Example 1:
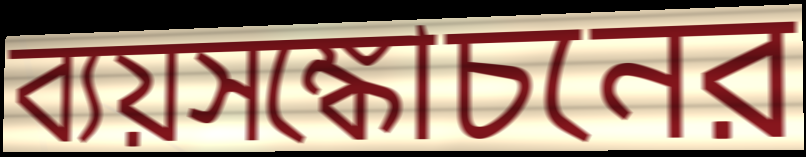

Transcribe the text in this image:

ব্যয়সঙ্কোচনের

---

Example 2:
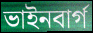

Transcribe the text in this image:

ভাইনবার্গ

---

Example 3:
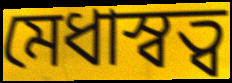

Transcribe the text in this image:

মেধাস্বত্ব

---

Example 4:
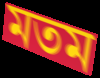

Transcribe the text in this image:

মতম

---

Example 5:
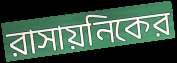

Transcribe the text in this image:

রাসায়নিকের